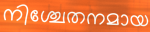
നിശ്ചേതനമായ